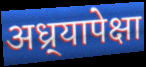
अध्र्यापेक्षा